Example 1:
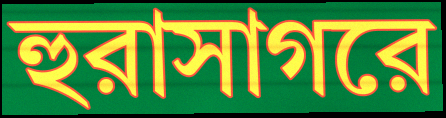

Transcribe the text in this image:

হুরাসাগরে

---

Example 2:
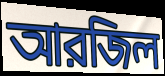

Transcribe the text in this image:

আরজিল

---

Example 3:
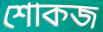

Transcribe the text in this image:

শোকজ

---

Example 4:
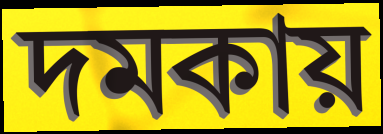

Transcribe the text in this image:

দমকায়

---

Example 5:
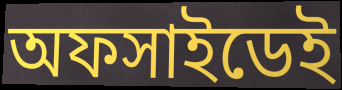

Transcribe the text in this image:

অফসাইডেই